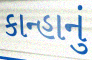
કાન્હાનું